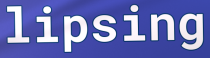
lipsing